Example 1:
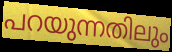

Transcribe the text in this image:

പറയുന്നതിലും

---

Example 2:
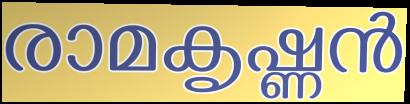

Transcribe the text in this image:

രാമകൃഷ്ണൻ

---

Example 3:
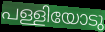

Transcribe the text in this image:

പള്ളിയോടു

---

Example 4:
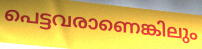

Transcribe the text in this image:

പെട്ടവരാണെങ്കിലും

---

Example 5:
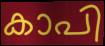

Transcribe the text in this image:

കാപി